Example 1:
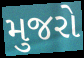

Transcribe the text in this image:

મુજરો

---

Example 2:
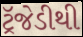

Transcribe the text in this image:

ટ્રૅજેડીથી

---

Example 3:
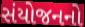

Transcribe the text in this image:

સંયોજનનો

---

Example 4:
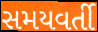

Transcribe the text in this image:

સમયવર્તી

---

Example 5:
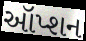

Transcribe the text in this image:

ઑપ્શન